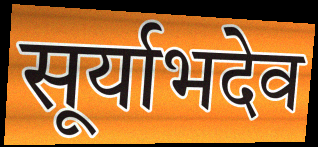
सूर्याभदेव